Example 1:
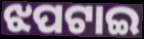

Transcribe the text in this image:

ଝପଟାଇ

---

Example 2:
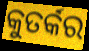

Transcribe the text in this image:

କୁତର୍କର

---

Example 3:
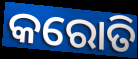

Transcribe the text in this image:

କରୋତି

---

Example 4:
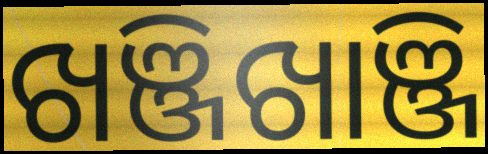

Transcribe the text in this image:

ଖଞ୍ଜିଖାଞ୍ଜି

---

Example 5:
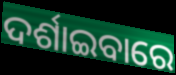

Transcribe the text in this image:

ଦର୍ଶାଇବାରେ